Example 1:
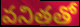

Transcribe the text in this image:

వనితతో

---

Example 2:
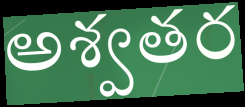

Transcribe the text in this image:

అశ్వతర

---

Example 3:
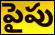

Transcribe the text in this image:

పైపు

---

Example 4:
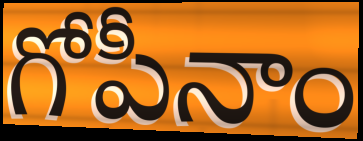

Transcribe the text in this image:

గోపీనాం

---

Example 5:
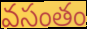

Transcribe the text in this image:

వసంతం